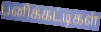
பனிக்கட்டிகள்